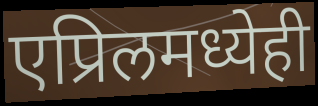
एप्रिलमध्येही